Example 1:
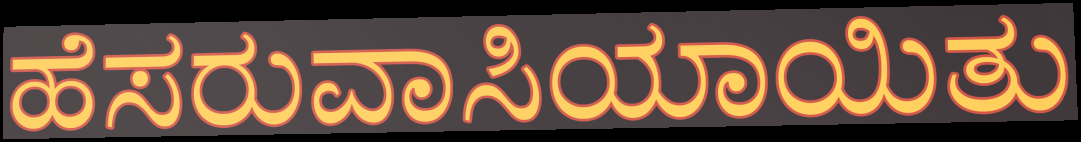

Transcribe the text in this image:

ಹೆಸರುವಾಸಿಯಾಯಿತು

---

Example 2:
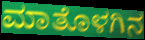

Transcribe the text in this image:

ಮಾತೊಳಗಿನ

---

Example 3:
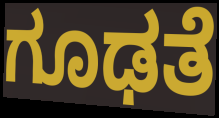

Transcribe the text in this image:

ಗೂಢತೆ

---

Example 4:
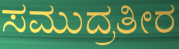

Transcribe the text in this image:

ಸಮುದ್ರತೀರ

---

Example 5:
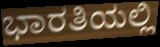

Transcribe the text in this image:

ಭಾರತಿಯಲ್ಲಿ